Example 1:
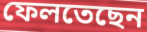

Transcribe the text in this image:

ফেলতেছেন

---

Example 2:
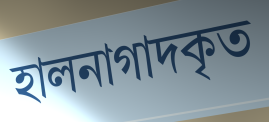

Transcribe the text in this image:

হালনাগাদকৃত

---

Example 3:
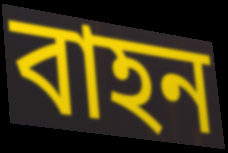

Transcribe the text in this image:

বাহন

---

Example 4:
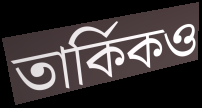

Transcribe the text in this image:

তার্কিকও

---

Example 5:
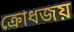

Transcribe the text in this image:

ক্রোধজয়